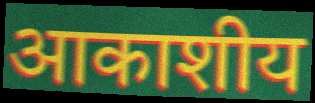
आकाशीय